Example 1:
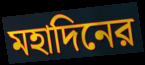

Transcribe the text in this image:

মহাদিনের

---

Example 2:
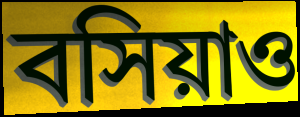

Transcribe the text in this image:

বসিয়াও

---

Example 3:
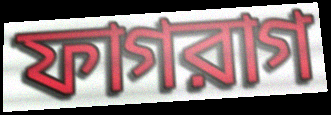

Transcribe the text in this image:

ফাগরাগ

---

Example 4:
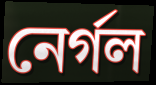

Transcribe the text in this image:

নের্গল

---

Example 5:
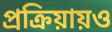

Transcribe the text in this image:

প্রক্রিয়ায়ও